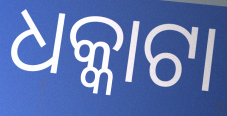
ଧକ୍କାଟା